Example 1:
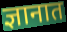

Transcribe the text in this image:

ज्ञानात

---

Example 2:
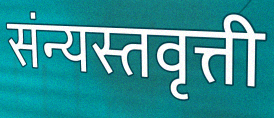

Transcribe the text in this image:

संन्यस्तवृत्ती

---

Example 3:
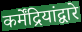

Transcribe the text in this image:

कर्मेंद्रियांद्वारे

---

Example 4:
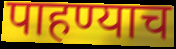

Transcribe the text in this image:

पाहण्याच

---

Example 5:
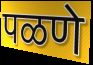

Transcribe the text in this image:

पळणे